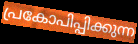
പ്രകോപിപ്പിക്കുന്ന